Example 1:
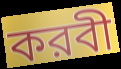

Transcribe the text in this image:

করবী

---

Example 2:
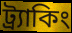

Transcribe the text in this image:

ট্র্যাকিং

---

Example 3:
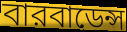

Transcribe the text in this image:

বারবাডেন্স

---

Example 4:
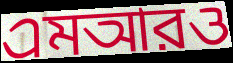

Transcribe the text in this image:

এমআরও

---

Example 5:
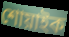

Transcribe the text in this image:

শোয়াইক